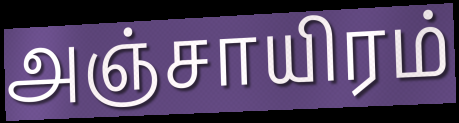
அஞ்சாயிரம்